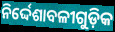
ନିର୍ଦ୍ଦେଶାବଳୀଗୁଡ଼ିକ